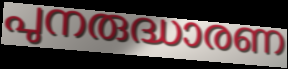
പുനരുദ്ധാരണ